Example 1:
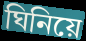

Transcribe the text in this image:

ঘিনিয়ে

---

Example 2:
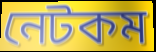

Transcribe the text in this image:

নেটকম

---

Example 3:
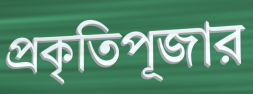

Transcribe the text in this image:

প্রকৃতিপূজার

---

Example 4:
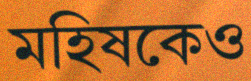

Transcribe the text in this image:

মহিষকেও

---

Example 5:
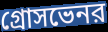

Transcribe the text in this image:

গ্রোসভেনর